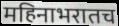
महिनाभरातच